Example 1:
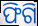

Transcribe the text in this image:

ଫିଗି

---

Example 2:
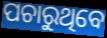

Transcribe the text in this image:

ପଚାରୁଥିବେ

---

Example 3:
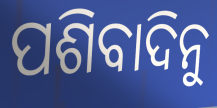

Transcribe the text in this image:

ପଶିବାଦିନୁ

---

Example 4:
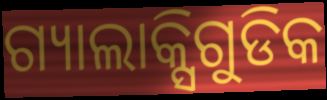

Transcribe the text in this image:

ଗ୍ୟାଲାକ୍ସିଗୁଡିକ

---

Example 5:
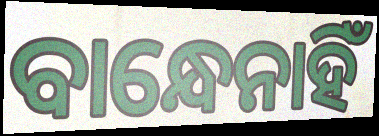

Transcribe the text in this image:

ବାନ୍ଧେନାହିଁ